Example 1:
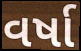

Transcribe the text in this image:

વર્ષા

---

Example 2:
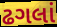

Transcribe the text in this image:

ઢગલાં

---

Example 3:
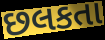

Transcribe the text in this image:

છલકતા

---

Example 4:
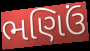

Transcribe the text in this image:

ભણિઉં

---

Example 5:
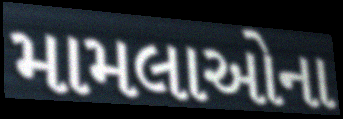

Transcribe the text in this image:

મામલાઓના